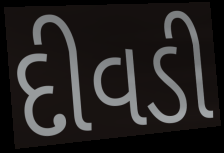
દીવડી